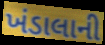
ખંડાલાની